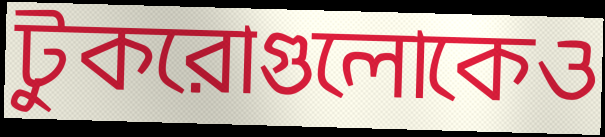
টুকরোগুলোকেও